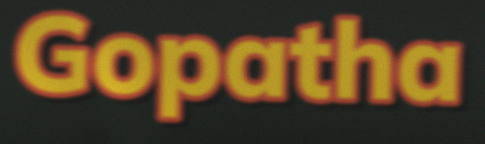
Gopatha